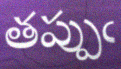
తప్పుఁ